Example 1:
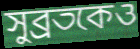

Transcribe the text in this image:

সুব্রতকেও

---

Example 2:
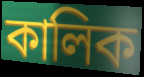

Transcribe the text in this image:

কালিক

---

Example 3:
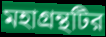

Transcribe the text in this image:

মহাগ্রন্থটির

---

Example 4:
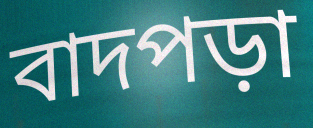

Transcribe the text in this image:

বাদপড়া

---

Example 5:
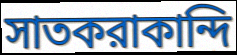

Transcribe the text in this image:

সাতকরাকান্দি